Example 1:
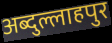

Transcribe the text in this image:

अब्दुल्लाहपुर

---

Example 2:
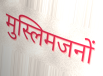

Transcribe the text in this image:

मुस्लिमजनों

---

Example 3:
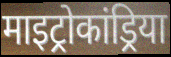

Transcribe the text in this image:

माइट्रोकांड्रिया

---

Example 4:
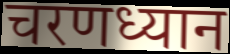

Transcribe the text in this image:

चरणध्यान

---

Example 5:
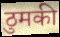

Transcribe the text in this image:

ठुमकी